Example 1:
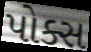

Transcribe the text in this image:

પોક્સ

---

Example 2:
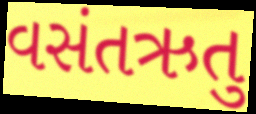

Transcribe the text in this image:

વસંતઋતુ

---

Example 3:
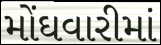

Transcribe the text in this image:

મોંઘવારીમાં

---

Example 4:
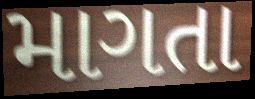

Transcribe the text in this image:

માગતા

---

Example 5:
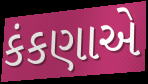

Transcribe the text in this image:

કંકણાએ